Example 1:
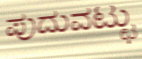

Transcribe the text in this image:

ಪುದುವಟ್ಟು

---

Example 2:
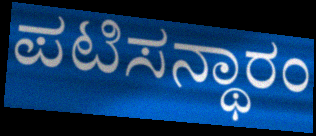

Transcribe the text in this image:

ಪಟಿಸನ್ಥಾರಂ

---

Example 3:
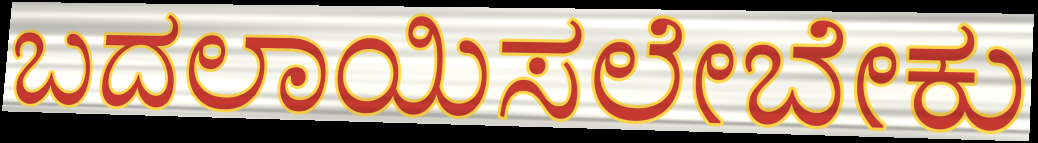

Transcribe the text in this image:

ಬದಲಾಯಿಸಲೇಬೇಕು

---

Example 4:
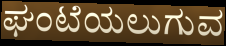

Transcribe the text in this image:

ಘಂಟೆಯಲುಗುವ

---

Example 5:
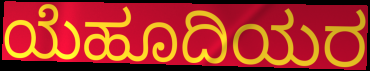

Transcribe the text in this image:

ಯೆಹೂದಿಯರ